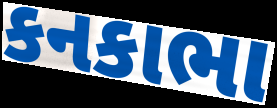
કનકાભા